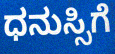
ಧನುಸ್ಸಿಗೆ